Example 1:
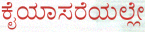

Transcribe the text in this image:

ಕೈಯಾಸರೆಯಲ್ಲೇ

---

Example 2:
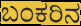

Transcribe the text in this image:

ಬಂಕರಿನ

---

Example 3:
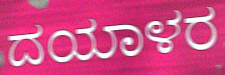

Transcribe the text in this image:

ದಯಾಳರ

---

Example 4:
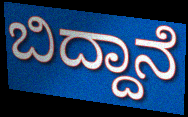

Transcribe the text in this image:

ಬಿದ್ದಾನೆ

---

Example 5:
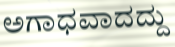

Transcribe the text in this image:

ಅಗಾಧವಾದದ್ದು